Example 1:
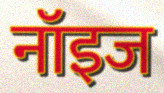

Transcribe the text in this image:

नॉइज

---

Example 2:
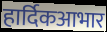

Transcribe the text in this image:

हार्दिकआभार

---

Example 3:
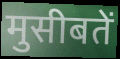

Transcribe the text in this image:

मुसीबतें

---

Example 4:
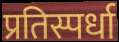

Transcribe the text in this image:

प्रतिस्पर्धा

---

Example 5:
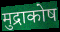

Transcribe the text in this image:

मुद्राकोष